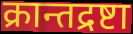
क्रान्तद्रष्टा